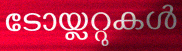
ടോയ്ലറ്റുകൾ